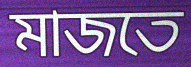
মাজতে